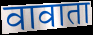
वावाता